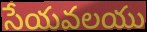
సేయవలయు